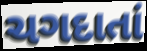
ચગદાતાં